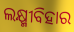
ଲକ୍ଷ୍ମୀବିହାର